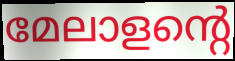
മേലാളന്റെ